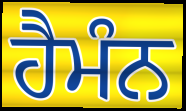
ਹੈਮੰਨ